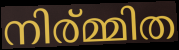
നിര്മ്മിത